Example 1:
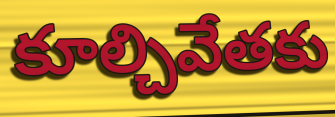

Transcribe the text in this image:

కూల్చివేతకు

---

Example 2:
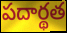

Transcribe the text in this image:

పదార్థత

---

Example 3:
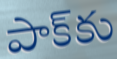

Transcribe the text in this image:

పాక్‌కు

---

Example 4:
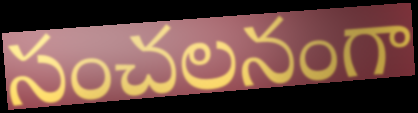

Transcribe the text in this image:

సంచలనంగా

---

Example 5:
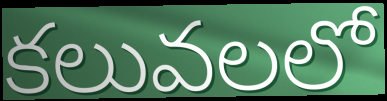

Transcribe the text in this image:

కలువలలో